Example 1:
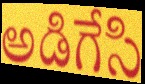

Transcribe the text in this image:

అడిగేసి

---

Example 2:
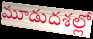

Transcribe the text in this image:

మూడుదశల్లో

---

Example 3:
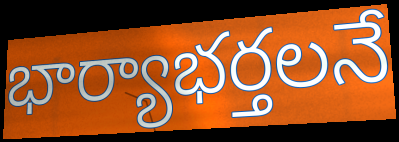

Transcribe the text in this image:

భార్యాభర్తలనే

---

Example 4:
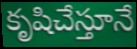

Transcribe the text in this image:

కృషిచేస్తూనే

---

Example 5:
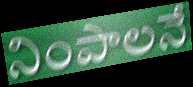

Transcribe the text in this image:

నింపాలనే